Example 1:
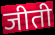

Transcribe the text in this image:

जीती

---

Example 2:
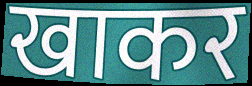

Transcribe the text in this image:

खाकर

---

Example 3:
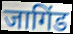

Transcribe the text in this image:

जागिंड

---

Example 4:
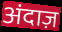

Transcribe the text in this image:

अंदाज़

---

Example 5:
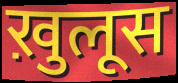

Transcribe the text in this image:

ख़ुलूस